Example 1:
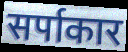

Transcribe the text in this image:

सर्पाकार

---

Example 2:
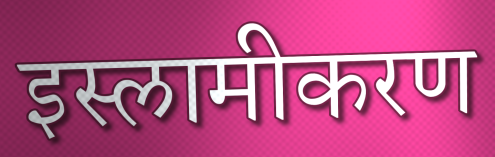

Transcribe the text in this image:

इस्लामीकरण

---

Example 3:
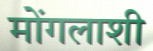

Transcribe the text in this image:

मोंगलाशी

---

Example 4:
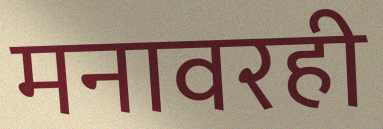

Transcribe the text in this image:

मनावरही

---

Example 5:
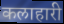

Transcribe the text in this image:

कलाहारी